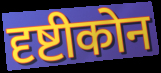
दृष्टीकोन